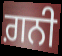
ਗ਼ਨੀ